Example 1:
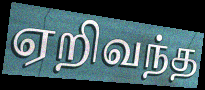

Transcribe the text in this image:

ஏறிவந்த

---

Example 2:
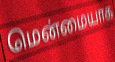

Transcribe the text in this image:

மென்மையாக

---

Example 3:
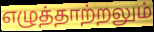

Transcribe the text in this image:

எழுத்தாற்றலும்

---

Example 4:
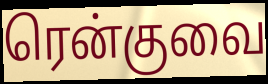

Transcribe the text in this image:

ரென்குவை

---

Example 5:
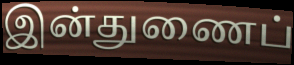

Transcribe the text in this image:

இன்துணைப்